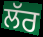
ਲੱਰ